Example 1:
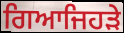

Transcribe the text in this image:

ਗਿਆਜਿਹੜੇ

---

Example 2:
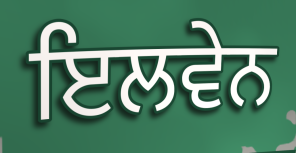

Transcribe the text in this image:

ਇਲਵੇਨ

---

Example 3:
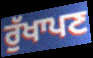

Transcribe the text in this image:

ਰੁੱਖਾਪਣ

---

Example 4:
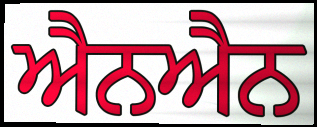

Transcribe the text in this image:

ਐਨਐਨ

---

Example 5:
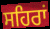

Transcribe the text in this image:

ਸਹਿਰਾਂ